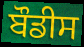
ਬੌਡੀਸ